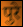
पुरे